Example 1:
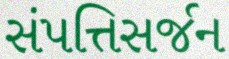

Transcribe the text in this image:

સંપત્તિસર્જન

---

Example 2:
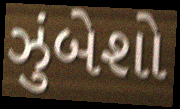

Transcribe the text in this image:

ઝુંબેશો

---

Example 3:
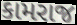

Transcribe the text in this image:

કામરાજ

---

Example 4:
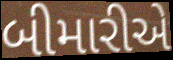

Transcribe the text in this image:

બીમારીએ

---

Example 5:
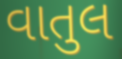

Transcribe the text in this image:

વાતુલ